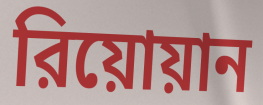
রিয়োয়ান